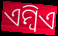
ଏମ୍ବିଏ